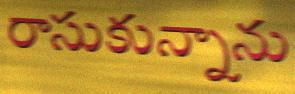
రాసుకున్నాను